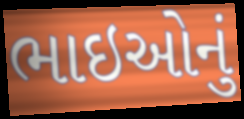
ભાઇઓનું